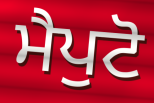
ਮੈਪੁਟੋ